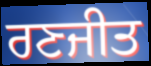
ਰਣਜੀਤ